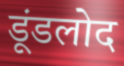
डूंडलोद